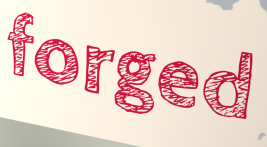
forged